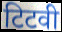
टिटवी